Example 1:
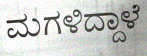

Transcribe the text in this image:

ಮಗಳಿದ್ದಾಳೆ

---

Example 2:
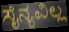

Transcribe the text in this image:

ಸೈನ್ಯವಿಲ್ಲ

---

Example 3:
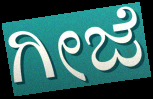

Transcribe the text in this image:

ಗೀಜೆ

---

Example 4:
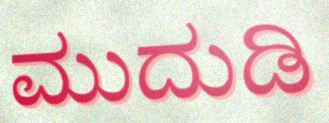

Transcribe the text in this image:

ಮುದುಡಿ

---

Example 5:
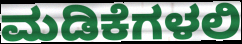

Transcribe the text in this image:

ಮಡಿಕೆಗಳಲಿ